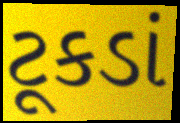
ટૂકડાં